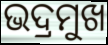
ଭଦ୍ରମୁଖ